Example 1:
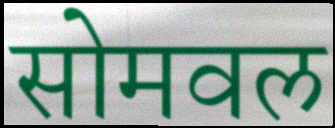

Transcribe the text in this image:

सोमवल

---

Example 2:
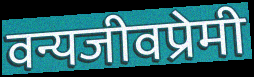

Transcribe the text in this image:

वन्यजीवप्रेमी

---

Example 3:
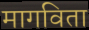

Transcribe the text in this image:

मागविता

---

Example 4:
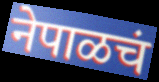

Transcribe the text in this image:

नेपाळचं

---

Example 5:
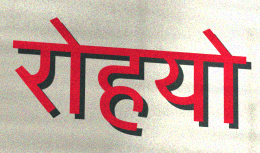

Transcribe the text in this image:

रोहयो